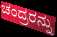
ಚಂದ್ರರನ್ನು